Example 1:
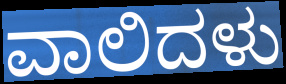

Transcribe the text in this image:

ವಾಲಿದಳು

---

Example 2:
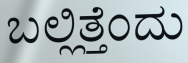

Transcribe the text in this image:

ಬಲ್ಲಿತ್ತೆಂದು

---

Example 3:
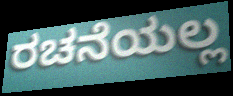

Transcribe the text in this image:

ರಚನೆಯಲ್ಲ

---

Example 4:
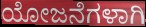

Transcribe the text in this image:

ಯೋಜನೆಗಳಾಗಿ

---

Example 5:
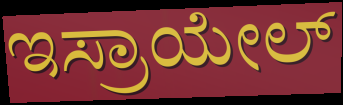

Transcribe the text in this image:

ಇಸ್ರಾಯೇಲ್